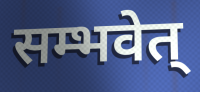
सम्भवेत्